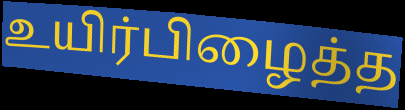
உயிர்பிழைத்த